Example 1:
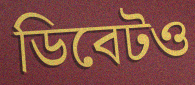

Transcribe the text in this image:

ডিবেটও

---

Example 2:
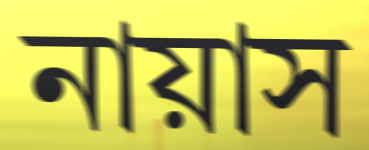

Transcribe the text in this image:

নায়াস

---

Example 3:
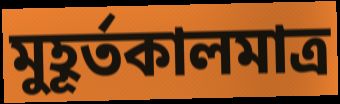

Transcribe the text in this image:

মুহূর্তকালমাত্র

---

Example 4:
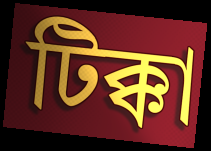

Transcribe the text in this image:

টিক্কা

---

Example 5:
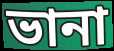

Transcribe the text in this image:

ভানা